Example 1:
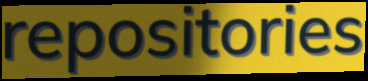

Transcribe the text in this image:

repositories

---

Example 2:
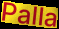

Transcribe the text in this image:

Palla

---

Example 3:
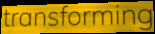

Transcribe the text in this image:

transforming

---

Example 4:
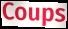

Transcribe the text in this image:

Coups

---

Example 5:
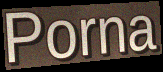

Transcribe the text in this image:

Porna